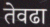
तेवढा